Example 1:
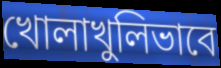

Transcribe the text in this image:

খোলাখুলিভাবে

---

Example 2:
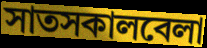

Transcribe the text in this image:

সাতসকালবেলা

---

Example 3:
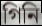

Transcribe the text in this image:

গিনি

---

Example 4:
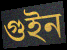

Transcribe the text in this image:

গুইন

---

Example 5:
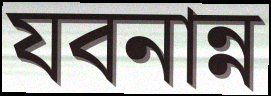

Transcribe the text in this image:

যবনান্ন